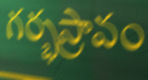
గర్భస్రావం